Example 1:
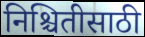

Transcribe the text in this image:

निश्चितीसाठी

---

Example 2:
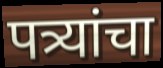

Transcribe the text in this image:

पत्र्यांचा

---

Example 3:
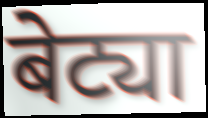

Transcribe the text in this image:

बेट्या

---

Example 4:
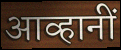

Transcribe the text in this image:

आव्हानीं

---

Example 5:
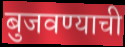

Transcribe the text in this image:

बुजवण्याची